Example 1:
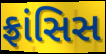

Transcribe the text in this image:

ફ્રાંસિસ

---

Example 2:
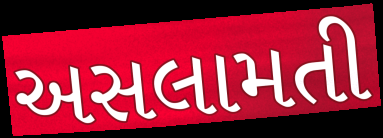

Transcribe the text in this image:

અસલામતી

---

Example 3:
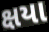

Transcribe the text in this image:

ક્ષયા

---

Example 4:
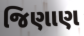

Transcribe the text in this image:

જિણાણ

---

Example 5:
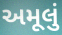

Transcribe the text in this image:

અમૂલું